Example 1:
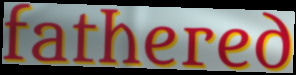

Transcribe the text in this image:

fathered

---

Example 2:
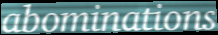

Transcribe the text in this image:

abominations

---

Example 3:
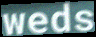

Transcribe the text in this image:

weds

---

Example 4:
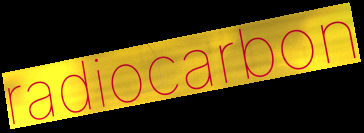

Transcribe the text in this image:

radiocarbon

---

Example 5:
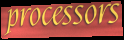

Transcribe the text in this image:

processors